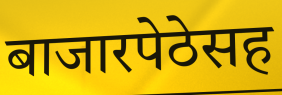
बाजारपेठेसह